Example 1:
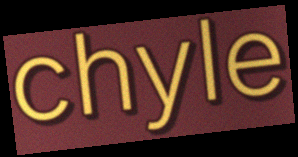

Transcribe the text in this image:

chyle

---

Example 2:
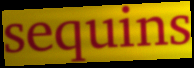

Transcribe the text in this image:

sequins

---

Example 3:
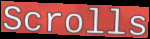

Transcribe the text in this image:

Scrolls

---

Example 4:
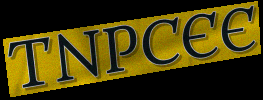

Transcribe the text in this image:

TNPCEE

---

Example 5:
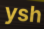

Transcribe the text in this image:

ysh